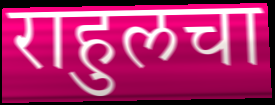
राहुलचा